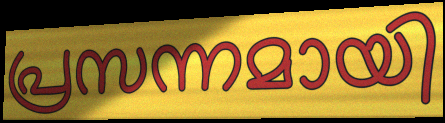
പ്രസന്നമായി